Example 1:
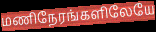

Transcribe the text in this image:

மணிநேரங்களிலேயே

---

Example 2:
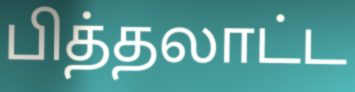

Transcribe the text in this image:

பித்தலாட்ட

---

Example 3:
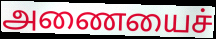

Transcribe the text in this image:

அணையைச்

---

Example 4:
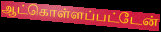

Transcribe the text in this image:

ஆட்கொள்ளப்பட்டேன்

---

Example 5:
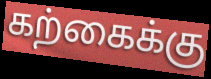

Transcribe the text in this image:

கற்கைக்கு